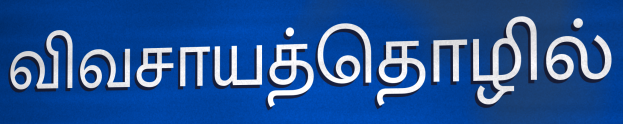
விவசாயத்தொழில்